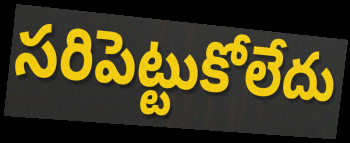
సరిపెట్టుకోలేదు